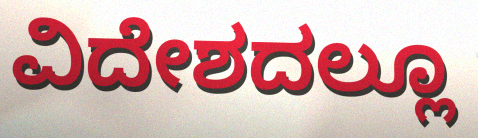
ವಿದೇಶದಲ್ಲೂ